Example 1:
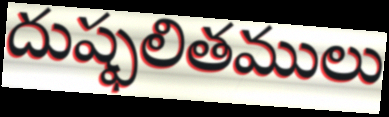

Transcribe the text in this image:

దుష్ఫలితములు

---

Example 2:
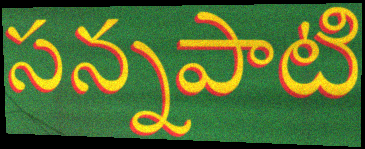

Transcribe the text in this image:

సన్నపాటి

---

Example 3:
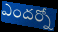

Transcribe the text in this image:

ఎందర్నో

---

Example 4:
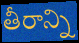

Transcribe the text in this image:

తీరాన్ని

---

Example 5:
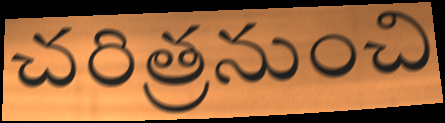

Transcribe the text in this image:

చరిత్రనుంచి